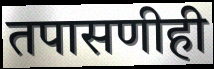
तपासणीही